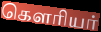
கௌரியர்